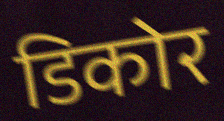
डिकोर